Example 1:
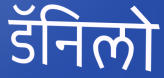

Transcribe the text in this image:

डॅनिलो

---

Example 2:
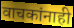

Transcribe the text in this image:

वाचकांनाही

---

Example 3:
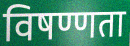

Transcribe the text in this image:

विषण्णता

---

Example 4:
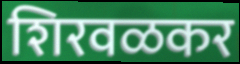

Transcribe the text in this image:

शिरवळकर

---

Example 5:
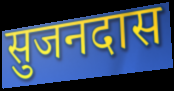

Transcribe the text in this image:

सुजनदास